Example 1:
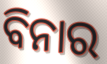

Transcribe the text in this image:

ବିନାର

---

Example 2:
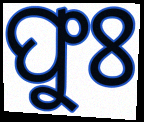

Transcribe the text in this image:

ଫୁଃ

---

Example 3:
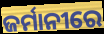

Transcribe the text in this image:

ଜର୍ମାନୀରେ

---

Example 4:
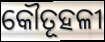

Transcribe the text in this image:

କୌତୂହଳୀ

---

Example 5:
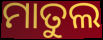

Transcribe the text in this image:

ମାତୁଲ